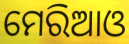
ମେରିଆଓ